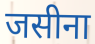
जसीना